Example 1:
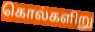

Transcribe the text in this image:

கொல்களிறு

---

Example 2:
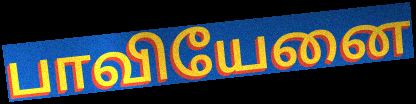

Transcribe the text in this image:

பாவியேனை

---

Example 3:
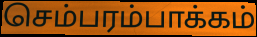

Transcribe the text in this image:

செம்பரம்பாக்கம்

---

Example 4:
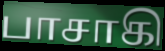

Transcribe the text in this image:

பாசாகி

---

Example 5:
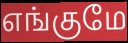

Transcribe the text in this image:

எங்குமே